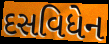
દસવિધેન